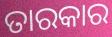
ତାରକାର